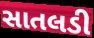
સાતલડી